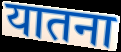
यातना